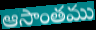
ఆసాంతము